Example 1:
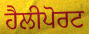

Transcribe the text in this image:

ਹੈਲੀਪੋਰਟ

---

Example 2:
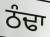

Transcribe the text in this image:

ਠੰਢਾ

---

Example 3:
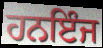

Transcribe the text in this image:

ਹਨਇੰਜ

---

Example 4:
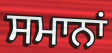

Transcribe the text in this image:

ਸਮਾਨਾਂ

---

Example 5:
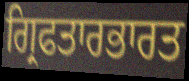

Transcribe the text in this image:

ਗ੍ਰਿਫਤਾਰਭਾਰਤ